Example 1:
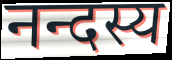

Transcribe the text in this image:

नन्दस्य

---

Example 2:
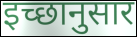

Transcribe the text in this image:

इच्‍छानुसार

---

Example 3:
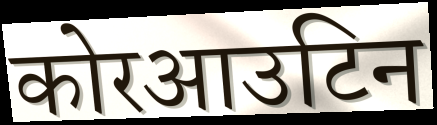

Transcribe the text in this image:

कोरआउटिन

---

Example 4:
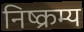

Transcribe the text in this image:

निष्क्रम्य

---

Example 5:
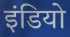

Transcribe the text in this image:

इंडियो